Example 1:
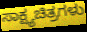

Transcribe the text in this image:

ಸಾಕ್ಷ್ಯಚಿತ್ರಗಳು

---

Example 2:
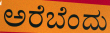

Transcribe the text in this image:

ಅರೆಬೆಂದು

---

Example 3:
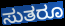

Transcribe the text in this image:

ಸುತರೂ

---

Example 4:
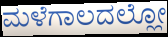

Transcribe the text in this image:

ಮಳೆಗಾಲದಲ್ಲೋ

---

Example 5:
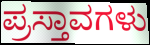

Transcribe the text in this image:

ಪ್ರಸ್ತಾವಗಳು